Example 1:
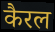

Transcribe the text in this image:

कैरल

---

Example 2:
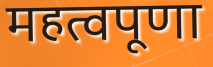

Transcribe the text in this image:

महत्वपूणा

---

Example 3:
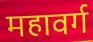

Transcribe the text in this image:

महावर्ग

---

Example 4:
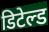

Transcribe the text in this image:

डिटेल्ड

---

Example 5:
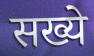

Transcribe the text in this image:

सख्ये